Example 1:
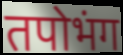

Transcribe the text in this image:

तपोभंग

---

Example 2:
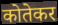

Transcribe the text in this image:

कोतेकर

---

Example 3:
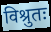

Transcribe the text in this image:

विश्रुतः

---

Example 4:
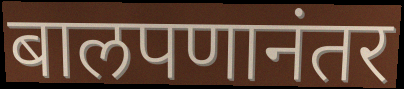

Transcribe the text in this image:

बालपणानंतर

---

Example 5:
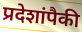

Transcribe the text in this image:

प्रदेशांपैकी